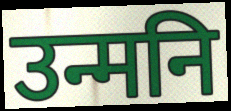
उन्मनि